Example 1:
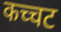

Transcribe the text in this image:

कच्चट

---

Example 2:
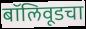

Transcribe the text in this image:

बॉलिवूडचा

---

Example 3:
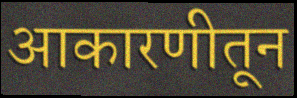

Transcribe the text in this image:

आकारणीतून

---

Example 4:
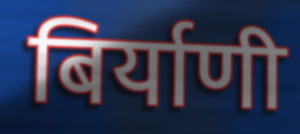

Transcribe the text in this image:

बिर्याणी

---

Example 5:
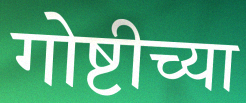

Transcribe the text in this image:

गोष्टीच्या